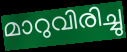
മാറുവിരിച്ചു